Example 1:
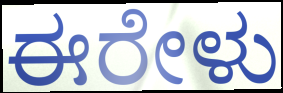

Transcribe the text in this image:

ಈರೇಳು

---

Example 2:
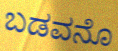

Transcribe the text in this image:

ಬಡವನೊ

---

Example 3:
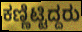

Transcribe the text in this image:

ಕಣ್ಣಿಟ್ಟಿದ್ದರು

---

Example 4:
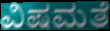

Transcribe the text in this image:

ವಿಷಮತೆ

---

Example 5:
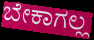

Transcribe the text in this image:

ಬೇಕಾಗಲ್ಲ